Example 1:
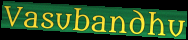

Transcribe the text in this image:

Vasubandhu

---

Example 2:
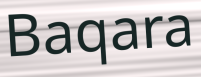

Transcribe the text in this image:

Baqara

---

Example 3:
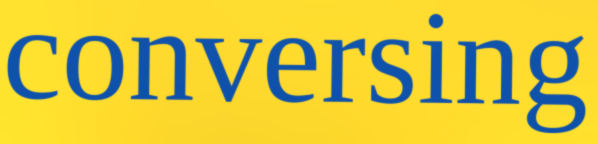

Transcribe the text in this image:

conversing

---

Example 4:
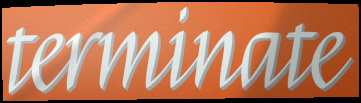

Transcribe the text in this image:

terminate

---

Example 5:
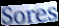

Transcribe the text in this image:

Sores